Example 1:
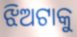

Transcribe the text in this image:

ଝିଅଟାକୁ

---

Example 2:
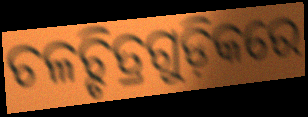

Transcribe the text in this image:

ଚଳଚ୍ଚିତ୍ରଗୁଡ଼ିକରେ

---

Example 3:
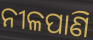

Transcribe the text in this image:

ନୀଳପାଣି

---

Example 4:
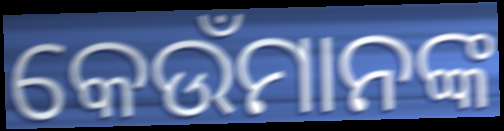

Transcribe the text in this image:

କେଉଁମାନଙ୍କ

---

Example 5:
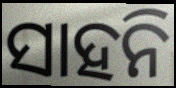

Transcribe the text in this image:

ସାହନି